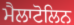
ਮੈਲਾਟੋਲਿਨ